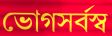
ভোগসর্বস্ব